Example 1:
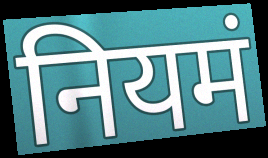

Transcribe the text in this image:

नियमं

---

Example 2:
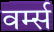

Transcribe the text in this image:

वर्म्स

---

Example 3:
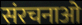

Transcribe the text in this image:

संरचनाओ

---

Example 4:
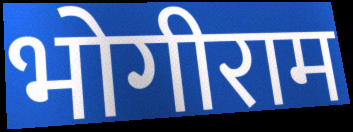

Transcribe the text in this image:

भोगीराम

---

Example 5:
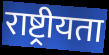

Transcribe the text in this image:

राष्ट्रीयता